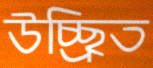
উচ্ছ্রিত